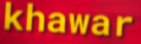
khawar